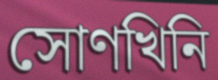
সোণখিনি